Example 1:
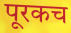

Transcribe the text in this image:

पूरकच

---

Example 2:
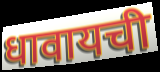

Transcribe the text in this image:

धावायची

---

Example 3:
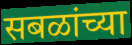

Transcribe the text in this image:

सबळांच्या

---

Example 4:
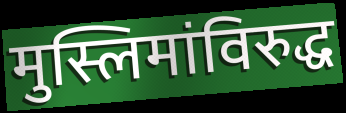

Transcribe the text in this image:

मुस्लिमांविरुद्ध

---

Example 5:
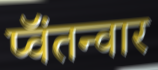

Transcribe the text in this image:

प्वॅंतन्वार